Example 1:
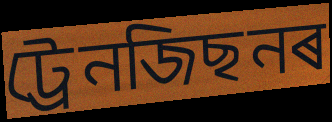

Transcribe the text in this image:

ট্ৰেনজিছনৰ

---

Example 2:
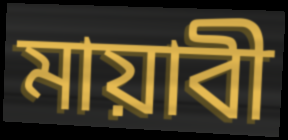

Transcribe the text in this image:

মায়াবী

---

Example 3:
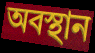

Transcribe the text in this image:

অবস্থান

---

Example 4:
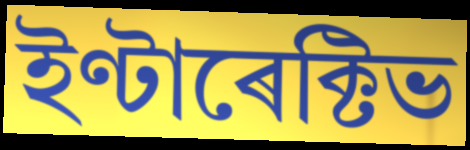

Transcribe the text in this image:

ইণ্টাৰেক্টিভ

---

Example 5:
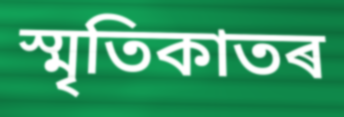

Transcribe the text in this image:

স্মৃতিকাতৰ